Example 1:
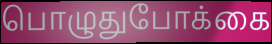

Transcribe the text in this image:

பொழுதுபோக்கை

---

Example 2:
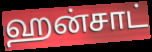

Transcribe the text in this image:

ஹன்சாட்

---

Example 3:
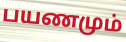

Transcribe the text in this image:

பயணமும்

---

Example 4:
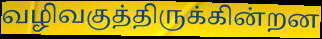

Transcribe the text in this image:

வழிவகுத்திருக்கின்றன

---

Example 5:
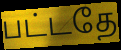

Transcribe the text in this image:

பட்டதே